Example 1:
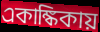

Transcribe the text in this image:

একাঙ্কিকায়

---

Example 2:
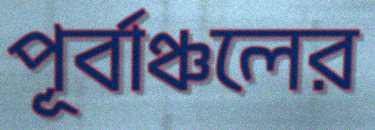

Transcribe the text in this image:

পূর্বাঞ্চলের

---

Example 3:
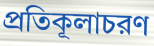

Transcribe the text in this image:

প্রতিকূলাচরণ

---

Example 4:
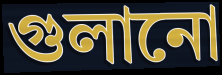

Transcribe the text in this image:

গুলানো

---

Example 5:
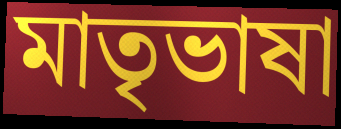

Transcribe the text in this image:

মাতৃভাষা